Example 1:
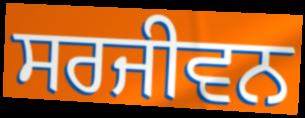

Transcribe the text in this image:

ਸਰਜੀਵਨ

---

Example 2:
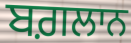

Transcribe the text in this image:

ਬਗ਼ਲਾਨ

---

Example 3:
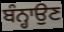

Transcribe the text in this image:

ਬੰਨ੍ਹਾਉਣ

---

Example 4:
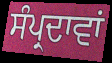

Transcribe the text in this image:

ਸੰਪ੍ਰਦਾਵਾਂ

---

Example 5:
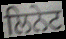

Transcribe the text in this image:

ਲਿਨੇਟ